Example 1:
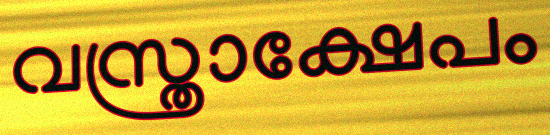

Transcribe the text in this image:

വസ്ത്രാക്ഷേപം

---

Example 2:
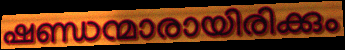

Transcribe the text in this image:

ഷണ്ഡന്മാരായിരിക്കും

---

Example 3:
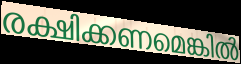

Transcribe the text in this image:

രക്ഷിക്കണമെങ്കിൽ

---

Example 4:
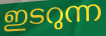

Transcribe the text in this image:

ഇടറുന്ന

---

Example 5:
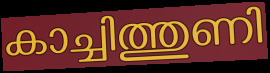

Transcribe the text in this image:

കാച്ചിത്തുണി